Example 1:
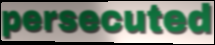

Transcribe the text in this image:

persecuted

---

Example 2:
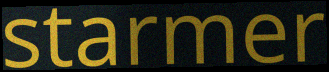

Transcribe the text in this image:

starmer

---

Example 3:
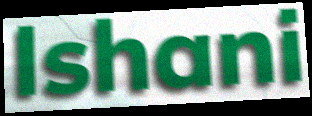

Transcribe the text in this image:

Ishani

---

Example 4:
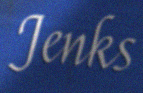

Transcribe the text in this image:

Jenks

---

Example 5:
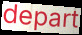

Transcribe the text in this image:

depart